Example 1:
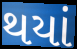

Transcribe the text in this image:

થયાં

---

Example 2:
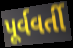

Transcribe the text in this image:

પૂર્વવર્તી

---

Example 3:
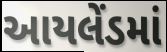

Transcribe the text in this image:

આયલેંડમાં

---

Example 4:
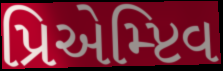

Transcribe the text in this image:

પ્રિએમ્પ્ટિવ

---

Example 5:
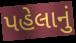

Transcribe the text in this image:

પહેલાનું